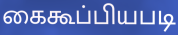
கைகூப்பியபடி